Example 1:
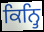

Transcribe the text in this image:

ਕਿਨ੍ਤਿ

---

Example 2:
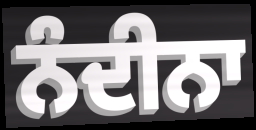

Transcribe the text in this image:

ਨੰਦੀਨਾ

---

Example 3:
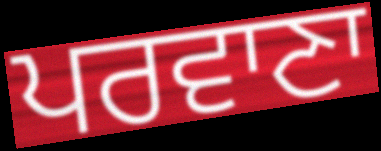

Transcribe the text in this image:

ਪਰਵਾਣਾ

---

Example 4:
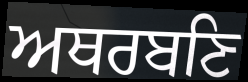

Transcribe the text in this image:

ਅਥਰਬਣਿ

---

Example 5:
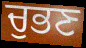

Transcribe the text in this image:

ਚੁਭਣ